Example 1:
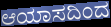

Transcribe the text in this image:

ಆಯಾಸದಿಂದ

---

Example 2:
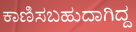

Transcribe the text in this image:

ಕಾಣಿಸಬಹುದಾಗಿದ್ದ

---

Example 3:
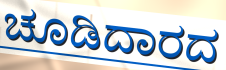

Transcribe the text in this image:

ಚೂಡಿದಾರದ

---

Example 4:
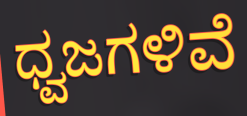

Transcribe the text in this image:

ಧ್ವಜಗಳಿವೆ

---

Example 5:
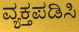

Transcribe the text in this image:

ವ್ಯಕ್ತಪಡಿಸಿ